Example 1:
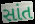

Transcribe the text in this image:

સાંત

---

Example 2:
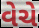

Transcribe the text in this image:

વેચે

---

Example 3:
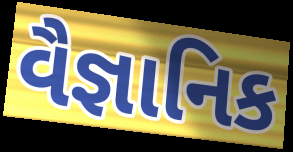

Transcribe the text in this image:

વૈજ્ઞાનિક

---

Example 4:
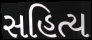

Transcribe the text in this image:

સહિત્ય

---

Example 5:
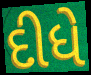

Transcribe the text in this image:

દીધે